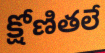
క్షోణితలే